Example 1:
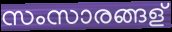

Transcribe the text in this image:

സംസാരങ്ങള്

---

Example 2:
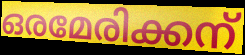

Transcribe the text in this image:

ഒരമേരിക്കന്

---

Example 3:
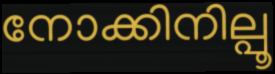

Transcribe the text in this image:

നോക്കിനില്പൂ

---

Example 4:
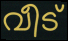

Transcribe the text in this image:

വീട്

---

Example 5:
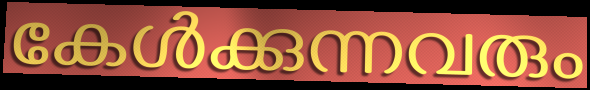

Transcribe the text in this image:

കേൾക്കുന്നവരും